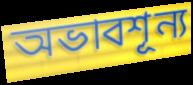
অভাবশূন্য